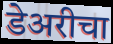
डेअरीचा